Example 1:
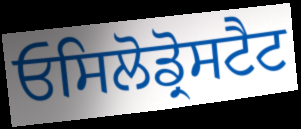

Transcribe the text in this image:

ਓਸਿਲੋਡ੍ਰੋਸਟੈਟ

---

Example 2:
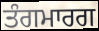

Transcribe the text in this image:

ਤੰਗਮਾਰਗ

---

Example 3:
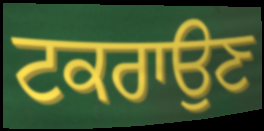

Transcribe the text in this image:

ਟਕਰਾਉਣ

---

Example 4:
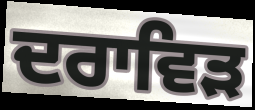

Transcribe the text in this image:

ਦਰਾਵਿੜ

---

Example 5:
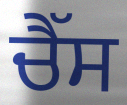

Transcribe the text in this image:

ਚੈੱਸ